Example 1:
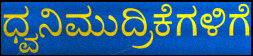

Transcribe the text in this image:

ಧ್ವನಿಮುದ್ರಿಕೆಗಳಿಗೆ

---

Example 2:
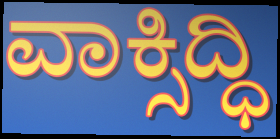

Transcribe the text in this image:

ವಾಕ್ಸಿದ್ಧಿ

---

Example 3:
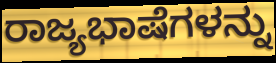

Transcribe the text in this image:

ರಾಜ್ಯಭಾಷೆಗಳನ್ನು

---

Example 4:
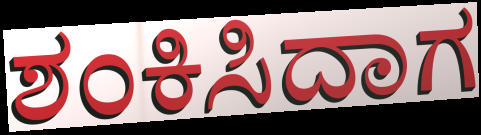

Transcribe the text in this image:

ಶಂಕಿಸಿದಾಗ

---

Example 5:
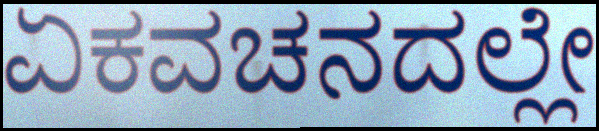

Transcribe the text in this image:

ಏಕವಚನದಲ್ಲೇ